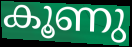
കൂണു